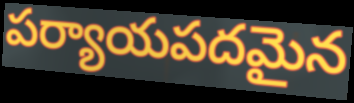
పర్యాయపదమైన